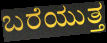
ಬರೆಯುತ್ತ